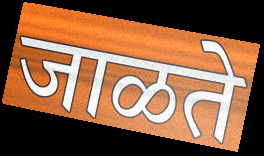
जाळते